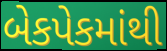
બેકપેકમાંથી